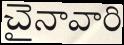
చైనావారి